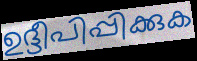
ഉദ്ദീപിപ്പിക്കുക